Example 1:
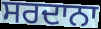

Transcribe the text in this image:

ਸਰਦਾਨਾ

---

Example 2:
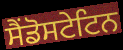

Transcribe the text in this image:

ਸੈਂਡੋਸਟੇਟਿਨ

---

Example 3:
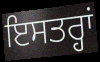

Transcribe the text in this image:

ਇਸਤਰ੍ਹਾਂ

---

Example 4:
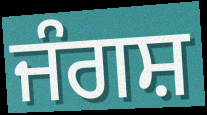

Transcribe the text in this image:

ਜੰਗਸ਼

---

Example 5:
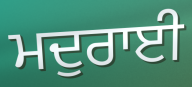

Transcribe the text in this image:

ਮਦੁਰਾਈ